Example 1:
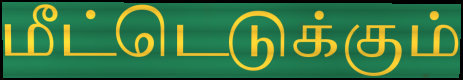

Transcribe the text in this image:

மீட்டெடுக்கும்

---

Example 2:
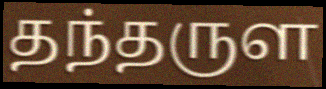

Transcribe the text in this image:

தந்தருள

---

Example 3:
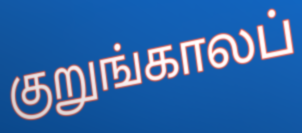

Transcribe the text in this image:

குறுங்காலப்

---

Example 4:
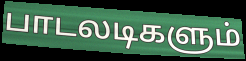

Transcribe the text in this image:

பாடலடிகளும்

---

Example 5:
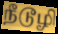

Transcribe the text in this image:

நீடூழி